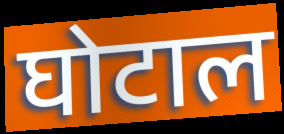
घोटाल